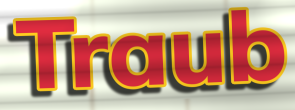
Traub